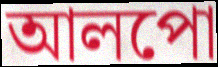
আলপো